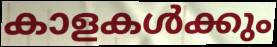
കാളകൾക്കും